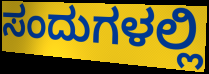
ಸಂದುಗಳಲ್ಲಿ